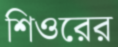
শিওরের